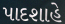
પાદશાહે